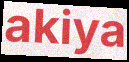
akiya